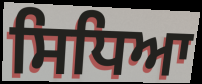
ਸਿਧਿਆ